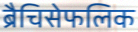
ब्रैचिसेफलिक